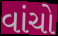
વાંચો